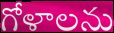
గోళాలను